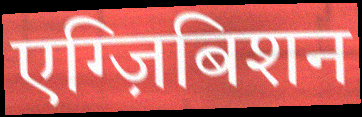
एग्ज़िबिशन